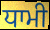
ਧਾਮੀ